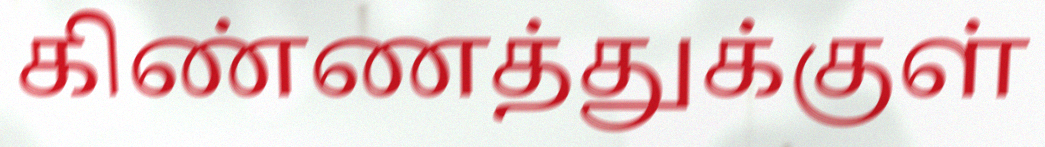
கிண்ணத்துக்குள்